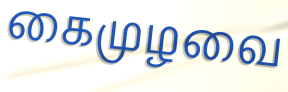
கைமுழவை